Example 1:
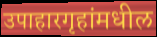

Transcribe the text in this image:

उपाहारगृहांमधील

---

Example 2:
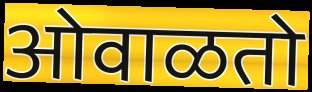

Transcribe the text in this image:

ओवाळतो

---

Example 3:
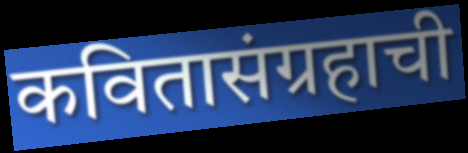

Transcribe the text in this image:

कवितासंग्रहाची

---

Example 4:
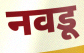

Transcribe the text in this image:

नवडू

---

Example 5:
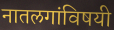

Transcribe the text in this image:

नातलगांविषयी